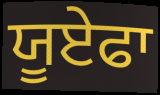
ਯੂਏਫਾ